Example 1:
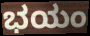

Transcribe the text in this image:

ಭಯಂ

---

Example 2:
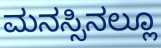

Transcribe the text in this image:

ಮನಸ್ಸಿನಲ್ಲೂ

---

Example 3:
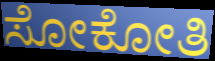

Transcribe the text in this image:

ಸೋಕೋತಿ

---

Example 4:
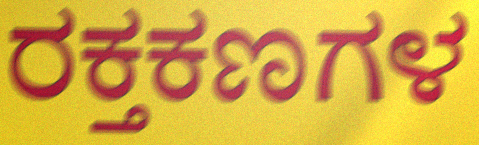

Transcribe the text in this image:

ರಕ್ತಕಣಗಳ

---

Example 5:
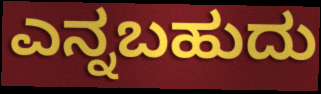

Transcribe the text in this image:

ಎನ್ನಬಹುದು